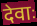
देवाः